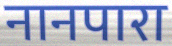
नानपारा